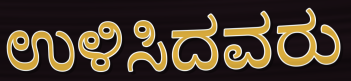
ಉಳಿಸಿದವರು